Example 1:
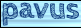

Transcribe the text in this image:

pavus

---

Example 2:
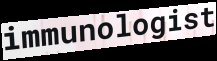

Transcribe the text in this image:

immunologist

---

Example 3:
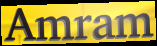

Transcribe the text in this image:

Amram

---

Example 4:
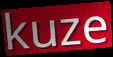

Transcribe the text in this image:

kuze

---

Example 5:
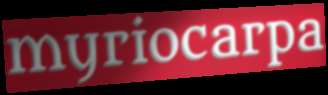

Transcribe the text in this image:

myriocarpa